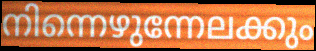
നിന്നെഴുന്നേലക്കും